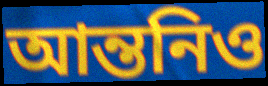
আন্তনিও